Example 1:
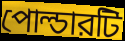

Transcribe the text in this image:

পোল্ডারটি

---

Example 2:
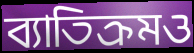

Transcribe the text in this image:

ব্যাতিক্রমও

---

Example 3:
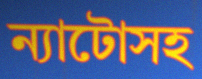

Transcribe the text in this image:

ন্যাটোসহ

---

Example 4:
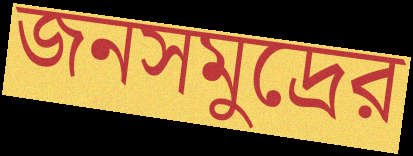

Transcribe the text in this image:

জনসমুদ্রের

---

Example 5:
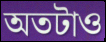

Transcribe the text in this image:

অতটাও